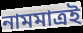
নামমাত্রই